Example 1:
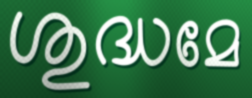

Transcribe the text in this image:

ശുദ്ധമേ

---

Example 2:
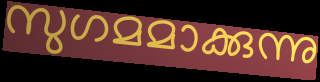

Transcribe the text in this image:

സുഗമമാക്കുന്നു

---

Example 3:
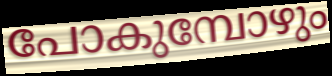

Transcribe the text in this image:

പോകുമ്പോഴും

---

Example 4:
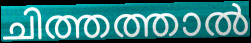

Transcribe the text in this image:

ചിത്തത്താൽ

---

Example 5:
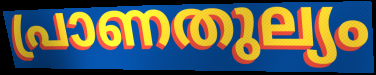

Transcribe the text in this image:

പ്രാണതുല്യം